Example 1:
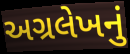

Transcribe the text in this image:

અગ્રલેખનું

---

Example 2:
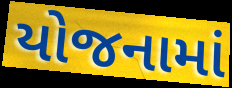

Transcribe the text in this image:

યોજનામાં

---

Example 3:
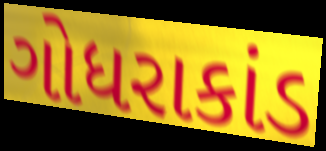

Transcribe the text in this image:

ગોધરાકાંડ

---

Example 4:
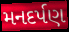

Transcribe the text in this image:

મનદર્પણ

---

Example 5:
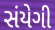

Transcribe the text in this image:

સંયેગી